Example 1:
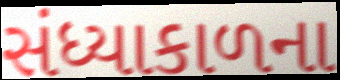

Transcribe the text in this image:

સંધ્યાકાળના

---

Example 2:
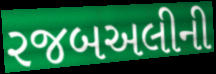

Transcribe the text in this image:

રજબઅલીની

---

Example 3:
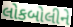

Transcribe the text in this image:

લોકબોલીને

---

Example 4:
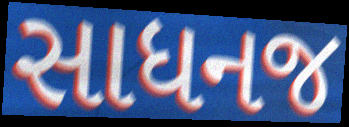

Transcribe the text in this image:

સાધનજ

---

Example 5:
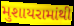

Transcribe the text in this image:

મુશાયરામાંથી